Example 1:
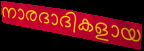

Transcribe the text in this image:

നാരദാദികളായ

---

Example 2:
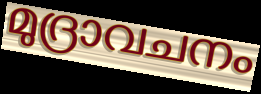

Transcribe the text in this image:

മുദ്രാവചനം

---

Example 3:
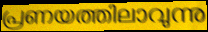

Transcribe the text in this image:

പ്രണയത്തിലാവുന്നു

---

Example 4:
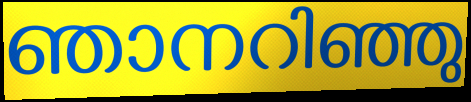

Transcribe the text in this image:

ഞാനറിഞ്ഞു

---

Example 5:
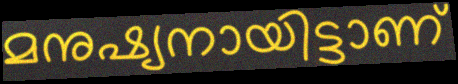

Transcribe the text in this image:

മനുഷ്യനായിട്ടാണ്